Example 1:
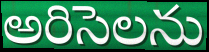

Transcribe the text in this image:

అరిసెలను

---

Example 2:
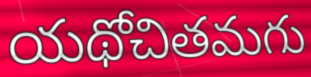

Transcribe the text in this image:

యథోచితమగు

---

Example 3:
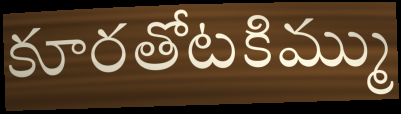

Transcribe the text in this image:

కూరతోటకిమ్ము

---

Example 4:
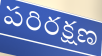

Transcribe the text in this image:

పరిరక్షణ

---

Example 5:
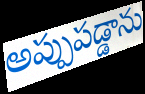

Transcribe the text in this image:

అప్పుపడ్డాను